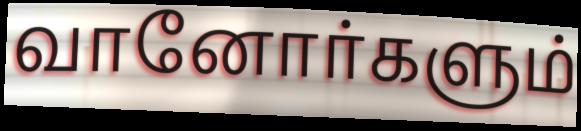
வானோர்களும்